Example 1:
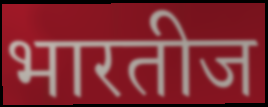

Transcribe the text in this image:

भारतीज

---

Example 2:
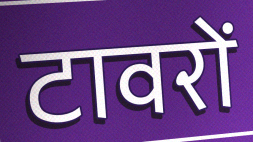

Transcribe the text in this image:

टावरों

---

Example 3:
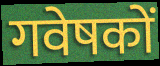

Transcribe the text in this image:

गवेषकों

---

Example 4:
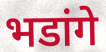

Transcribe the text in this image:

भडांगे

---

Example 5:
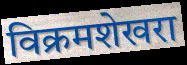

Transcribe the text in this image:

विक्रमशेखरा